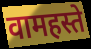
वामहस्ते